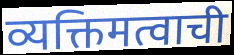
व्यक्तिमत्वाची